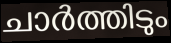
ചാർത്തിടും